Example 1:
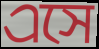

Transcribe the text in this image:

এসে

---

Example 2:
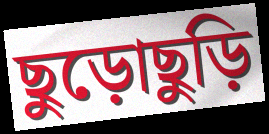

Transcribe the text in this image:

ছুড়োছুড়ি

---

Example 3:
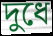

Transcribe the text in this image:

দুধে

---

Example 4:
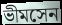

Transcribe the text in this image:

ভীমসেন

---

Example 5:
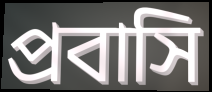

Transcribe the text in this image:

প্রবাসি